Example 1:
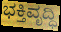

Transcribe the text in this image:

ಭಕ್ತಿವೃದ್ಧಿ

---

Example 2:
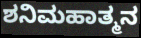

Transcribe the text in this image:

ಶನಿಮಹಾತ್ಮನ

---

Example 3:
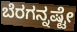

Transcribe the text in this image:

ಬೆರಗನ್ನಷ್ಟೇ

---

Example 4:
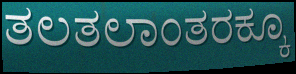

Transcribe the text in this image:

ತಲತಲಾಂತರಕ್ಕೂ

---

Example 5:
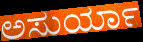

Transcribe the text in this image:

ಅಸುರ್ಯಾ